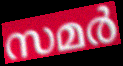
സമർ